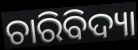
ଚାରିବିଦ୍ୟା